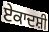
ਏਕਾਦਸ਼ੀ